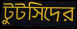
টুটসিদের